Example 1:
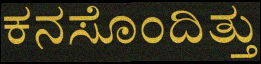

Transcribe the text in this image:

ಕನಸೊಂದಿತ್ತು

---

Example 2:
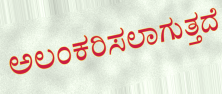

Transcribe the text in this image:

ಅಲಂಕರಿಸಲಾಗುತ್ತದೆ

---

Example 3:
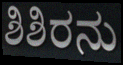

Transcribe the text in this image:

ಶಿಶಿರನು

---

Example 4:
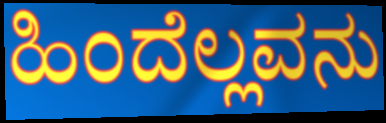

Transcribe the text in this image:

ಹಿಂದೆಲ್ಲವನು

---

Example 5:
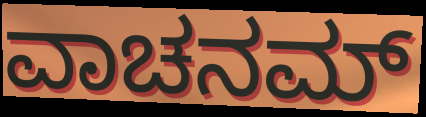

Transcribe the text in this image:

ವಾಚನಮ್